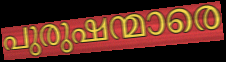
പുരുഷന്മാരെ